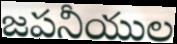
జపనీయుల